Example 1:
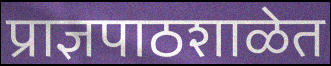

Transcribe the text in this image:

प्राज्ञपाठशाळेत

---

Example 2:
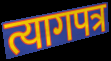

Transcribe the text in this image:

त्यागपत्र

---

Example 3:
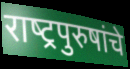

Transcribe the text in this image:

राष्ट्रपुरुषांचे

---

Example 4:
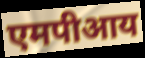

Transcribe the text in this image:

एमपीआय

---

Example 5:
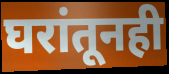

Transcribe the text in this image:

घरांतूनही